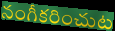
నంగీకరించుట